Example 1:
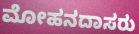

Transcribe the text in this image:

ಮೋಹನದಾಸರು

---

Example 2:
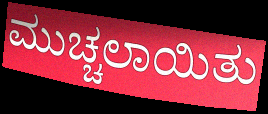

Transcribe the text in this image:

ಮುಚ್ಚಲಾಯಿತು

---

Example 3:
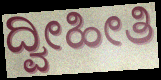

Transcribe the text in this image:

ದ್ವೀಹೀತಿ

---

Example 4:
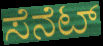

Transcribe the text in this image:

ಸೆನೆಟ್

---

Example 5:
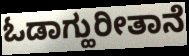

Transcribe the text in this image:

ಓಡಾಗ್ಹುರೀತಾನೆ